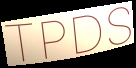
TPDS